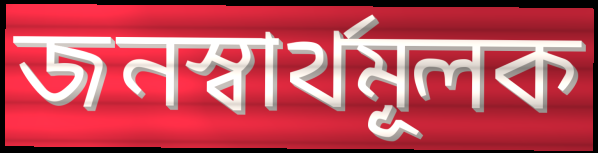
জনস্বার্থমূলক